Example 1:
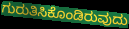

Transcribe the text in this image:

ಗುರುತಿಸಿಕೊಂಡಿರುವುದು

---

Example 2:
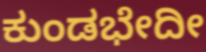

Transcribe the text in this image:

ಕುಂಡಭೇದೀ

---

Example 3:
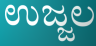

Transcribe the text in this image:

ಉಜ್ಜಲ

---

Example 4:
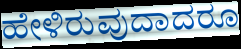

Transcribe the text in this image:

ಹೇಳಿರುವುದಾದರೂ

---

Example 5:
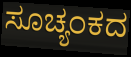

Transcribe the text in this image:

ಸೂಚ್ಯಂಕದ